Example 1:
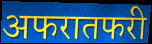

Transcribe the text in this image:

अफरातफरी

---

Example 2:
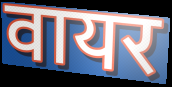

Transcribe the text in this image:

वायर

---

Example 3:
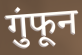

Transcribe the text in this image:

गुंफून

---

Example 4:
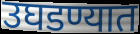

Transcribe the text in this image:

उघडण्यात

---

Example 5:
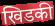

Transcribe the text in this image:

खिडकी